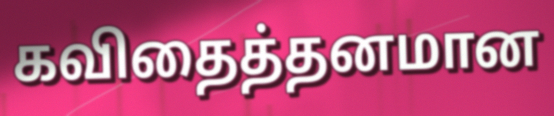
கவிதைத்தனமான